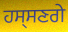
ਹਸ੍ਸਣਗੇ